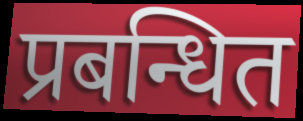
प्रबन्धित